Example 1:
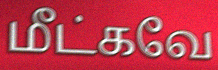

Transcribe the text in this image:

மீட்கவே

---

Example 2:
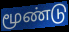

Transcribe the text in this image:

மூண்டு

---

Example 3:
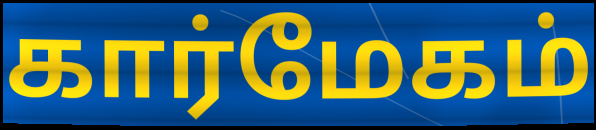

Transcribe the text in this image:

கார்மேகம்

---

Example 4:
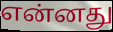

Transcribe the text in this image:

என்னது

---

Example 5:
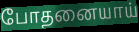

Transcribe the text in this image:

போதனையாய்